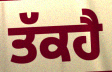
ਤੱਕਹੈ